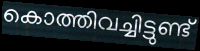
കൊത്തിവച്ചിട്ടുണ്ട്